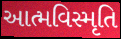
આત્મવિસ્મૃતિ